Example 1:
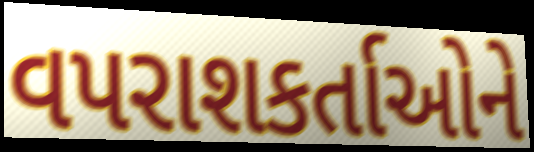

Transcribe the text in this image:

વપરાશકર્તાઓને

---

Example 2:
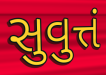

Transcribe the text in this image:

સુવુત્તં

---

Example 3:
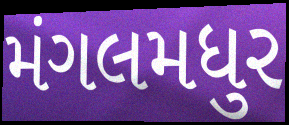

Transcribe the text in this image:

મંગલમધુર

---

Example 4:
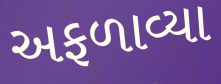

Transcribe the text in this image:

અફળાવ્યા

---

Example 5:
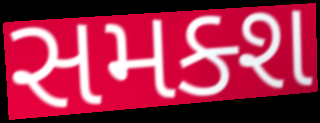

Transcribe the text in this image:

સમક્શ